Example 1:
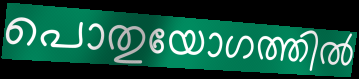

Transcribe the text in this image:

പൊതുയോഗത്തിൽ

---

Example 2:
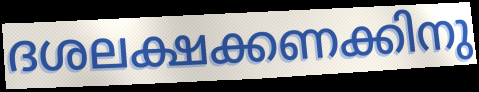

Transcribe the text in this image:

ദശലക്ഷക്കണക്കിനു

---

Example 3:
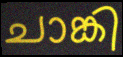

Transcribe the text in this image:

ചാങ്കി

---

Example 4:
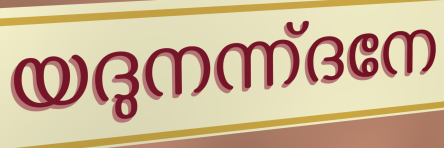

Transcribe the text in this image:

യദുനന്ന്ദനേ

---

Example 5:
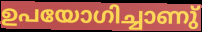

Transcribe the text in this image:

ഉപയോഗിച്ചാണു്